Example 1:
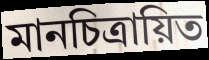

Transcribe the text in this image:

মানচিত্রায়িত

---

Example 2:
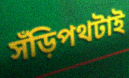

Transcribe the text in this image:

সঁড়িপথটাই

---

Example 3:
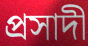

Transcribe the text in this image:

প্রসাদী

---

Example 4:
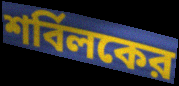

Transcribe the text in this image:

শর্বিলকের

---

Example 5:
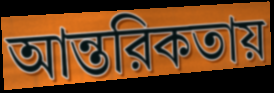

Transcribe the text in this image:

আন্তরিকতায়